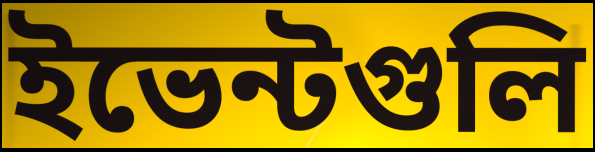
ইভেন্টগুলি